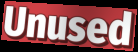
Unused